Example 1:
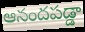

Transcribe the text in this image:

ఆనందపడ్డా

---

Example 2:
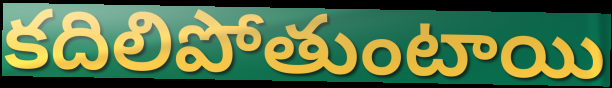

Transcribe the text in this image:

కదిలిపోతుంటాయి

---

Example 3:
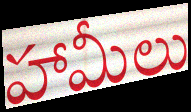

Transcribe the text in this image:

హామీలు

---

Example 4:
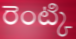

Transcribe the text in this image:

రెంట్కి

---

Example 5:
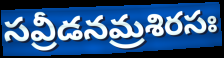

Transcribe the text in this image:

సవ్రీడనమ్రశిరసః